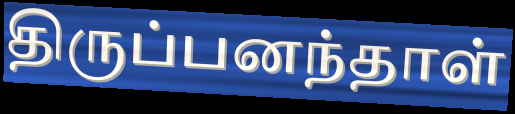
திருப்பனந்தாள்